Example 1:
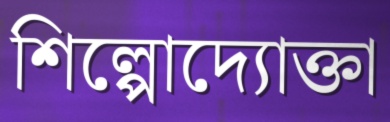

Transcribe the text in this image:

শিল্পোদ্যোক্তা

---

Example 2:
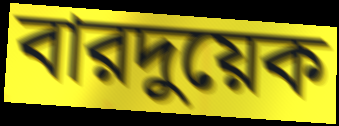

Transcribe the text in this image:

বারদুয়েক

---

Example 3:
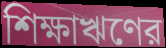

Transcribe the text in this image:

শিক্ষাঋণের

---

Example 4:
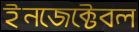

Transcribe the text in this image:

ইনজেক্টেবল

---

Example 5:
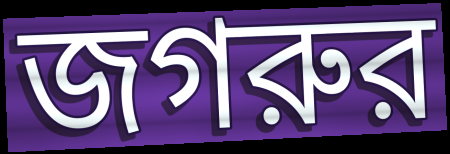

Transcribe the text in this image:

জগরুর